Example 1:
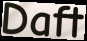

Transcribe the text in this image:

Daft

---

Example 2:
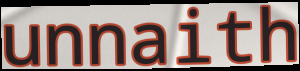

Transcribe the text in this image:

unnaith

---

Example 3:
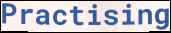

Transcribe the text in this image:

Practising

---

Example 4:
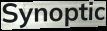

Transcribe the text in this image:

Synoptic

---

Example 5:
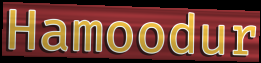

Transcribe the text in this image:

Hamoodur